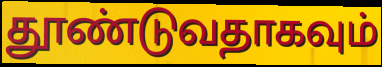
தூண்டுவதாகவும்